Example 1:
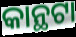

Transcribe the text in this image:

କାନ୍ଥଟା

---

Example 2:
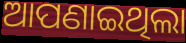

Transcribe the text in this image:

ଆପଣାଇଥିଲା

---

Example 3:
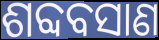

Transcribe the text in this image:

ଶବ୍ଦବସାଣ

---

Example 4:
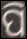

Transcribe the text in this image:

ପି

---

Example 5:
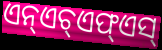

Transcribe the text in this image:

ଏନ୍ଏଚ୍ଏଫ୍ଏସ୍